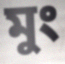
মুং